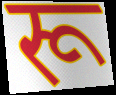
रू